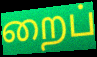
றைப்